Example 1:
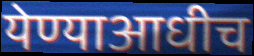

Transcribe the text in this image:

येण्याआधीच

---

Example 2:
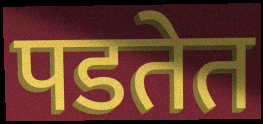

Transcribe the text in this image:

पडतेत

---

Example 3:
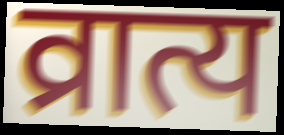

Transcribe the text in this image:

व्रात्य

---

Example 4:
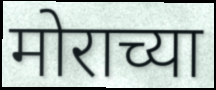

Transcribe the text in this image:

मोराच्या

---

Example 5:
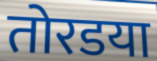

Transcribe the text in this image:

तोरडया